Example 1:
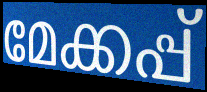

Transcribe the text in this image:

മേക്കപ്പ്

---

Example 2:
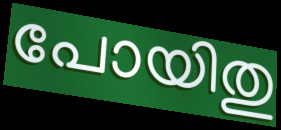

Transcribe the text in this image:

പോയിതു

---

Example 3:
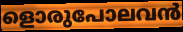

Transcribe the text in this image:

ളൊരുപോലവൻ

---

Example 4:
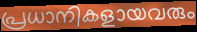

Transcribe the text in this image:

പ്രധാനികളായവരും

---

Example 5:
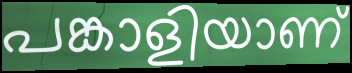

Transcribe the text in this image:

പങ്കാളിയാണ്